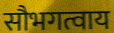
सौभगत्वाय